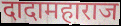
दादामहाराज